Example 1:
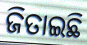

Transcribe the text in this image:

ଜିତାଇଛି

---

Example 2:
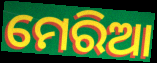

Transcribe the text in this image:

ମେରିଆ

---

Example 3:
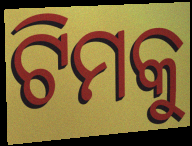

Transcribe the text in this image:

ଟିମକୁ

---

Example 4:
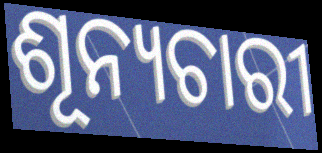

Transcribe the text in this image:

ଶୂନ୍ୟଚାରୀ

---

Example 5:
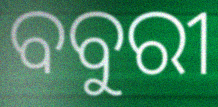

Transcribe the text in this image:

ବବୁରୀ